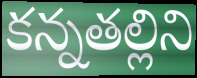
కన్నతల్లిని